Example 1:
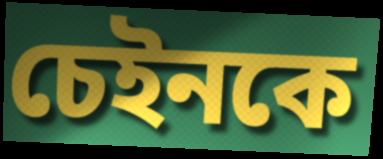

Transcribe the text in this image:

চেইনকে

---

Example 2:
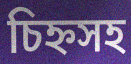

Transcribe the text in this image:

চিহ্নসহ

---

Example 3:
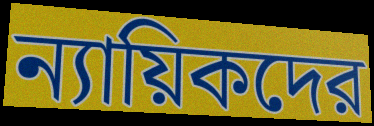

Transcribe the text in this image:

ন্যায়িকদের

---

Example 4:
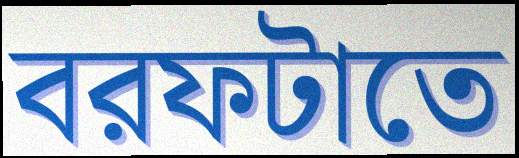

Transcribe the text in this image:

বরফটাতে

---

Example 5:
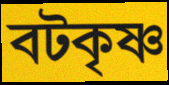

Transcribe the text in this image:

বটকৃষ্ণ